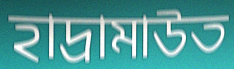
হাদ্রামাউত